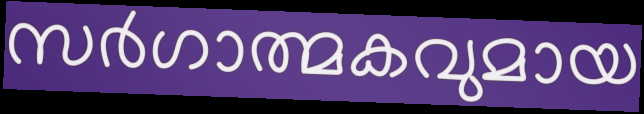
സർഗാത്മകവുമായ